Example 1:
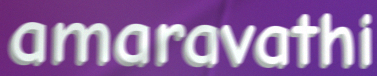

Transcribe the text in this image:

amaravathi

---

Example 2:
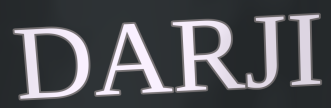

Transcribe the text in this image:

DARJI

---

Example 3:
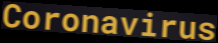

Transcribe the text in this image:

Coronavirus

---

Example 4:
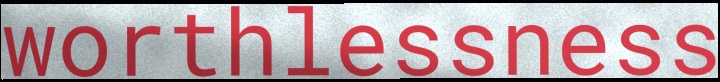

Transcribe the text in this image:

worthlessness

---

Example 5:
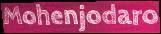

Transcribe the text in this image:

Mohenjodaro